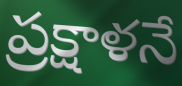
ప్రక్షాళనే